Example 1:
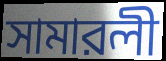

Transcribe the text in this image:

সামারলী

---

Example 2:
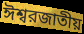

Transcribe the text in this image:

ঈশ্বরজাতীয়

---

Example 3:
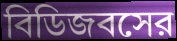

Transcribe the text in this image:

বিডিজবসের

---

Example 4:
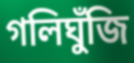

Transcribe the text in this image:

গলিঘুঁজি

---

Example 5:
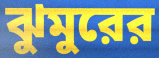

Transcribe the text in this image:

ঝুমুরের